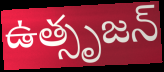
ఉత్సృజన్